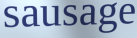
sausage